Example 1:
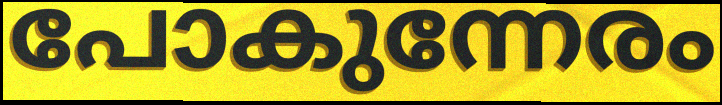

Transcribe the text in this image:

പോകുന്നേരം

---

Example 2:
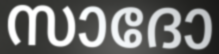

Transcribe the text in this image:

സാദോ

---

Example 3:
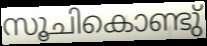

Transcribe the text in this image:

സൂചികൊണ്ടു്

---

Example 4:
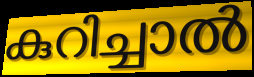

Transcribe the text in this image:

കുറിച്ചാൽ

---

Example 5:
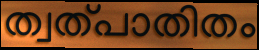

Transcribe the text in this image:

ത്വത്പാതിതം